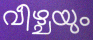
വീഴ്ചയും